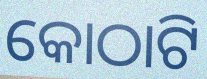
କୋଠାଟି